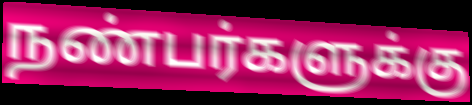
நண்பர்களுக்கு